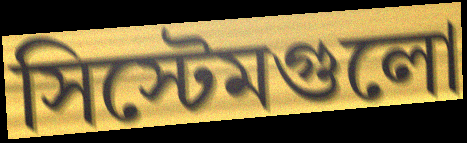
সিস্টেমগুলো